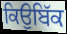
ਕਿਉਬਿੱਕ